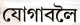
যোগাবলৈ